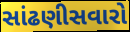
સાંઢણીસવારો